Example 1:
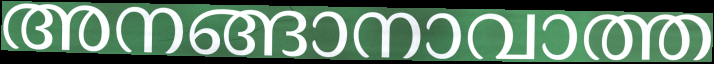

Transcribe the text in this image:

അനങ്ങാനാവാത്ത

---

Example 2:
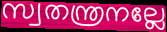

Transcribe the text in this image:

സ്വതന്ത്രനല്ലേ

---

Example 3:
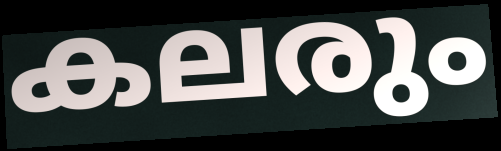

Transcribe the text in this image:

കലരും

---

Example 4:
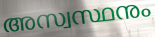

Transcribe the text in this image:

അസ്വസ്ഥനും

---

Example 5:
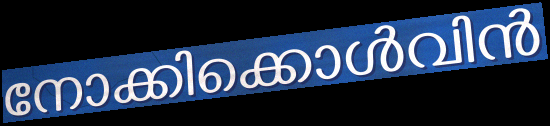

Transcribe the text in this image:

നോക്കിക്കൊൾവിൻ